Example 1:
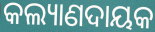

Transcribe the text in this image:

କଲ୍ୟାଣଦାୟକ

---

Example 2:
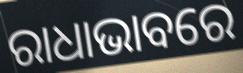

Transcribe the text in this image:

ରାଧାଭାବରେ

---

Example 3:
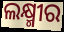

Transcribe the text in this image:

ଲକ୍ଷ୍ମୀର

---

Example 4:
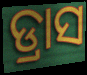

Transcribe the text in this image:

ଡ୍ରାସ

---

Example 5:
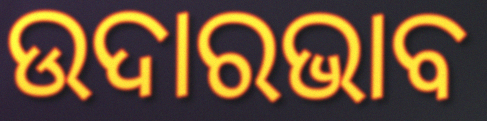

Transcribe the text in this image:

ଉଦାରଭାବ